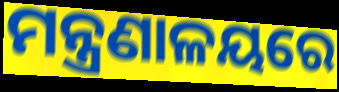
ମନ୍ତ୍ରଣାଳୟରେ